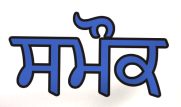
ਸਮੌਕ